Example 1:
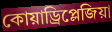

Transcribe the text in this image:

কোয়াড্রিপ্লেজিয়া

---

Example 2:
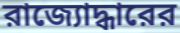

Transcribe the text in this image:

রাজ্যোদ্ধারের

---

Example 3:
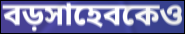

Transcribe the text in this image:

বড়সাহেবকেও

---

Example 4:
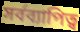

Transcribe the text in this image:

সর্বব্যাপিত্ব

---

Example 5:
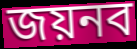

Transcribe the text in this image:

জয়নব